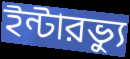
ইন্টারভ্যু